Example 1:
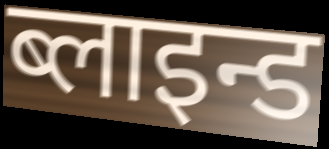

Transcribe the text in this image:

ब्लाइन्ड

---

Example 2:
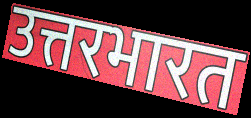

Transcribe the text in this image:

उत्तरभारत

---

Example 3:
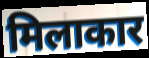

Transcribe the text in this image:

मिलाकार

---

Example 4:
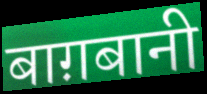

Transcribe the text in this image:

बाग़बानी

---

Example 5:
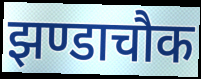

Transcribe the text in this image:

झण्डाचौक